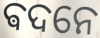
ଵଦନେ